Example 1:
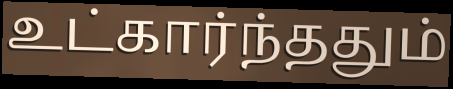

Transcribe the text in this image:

உட்கார்ந்ததும்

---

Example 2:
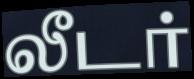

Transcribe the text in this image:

லீடர்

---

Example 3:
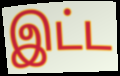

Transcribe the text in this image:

இட்ட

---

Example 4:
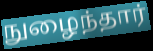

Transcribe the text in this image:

நுழைந்தார்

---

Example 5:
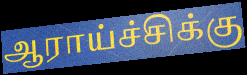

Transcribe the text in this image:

ஆராய்ச்சிக்கு